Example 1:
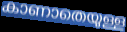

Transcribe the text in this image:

കാണാതെയുള്ള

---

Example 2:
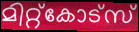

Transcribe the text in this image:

മിറ്റ്കോട്സ്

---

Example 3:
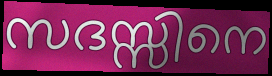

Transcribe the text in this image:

സദസ്സിനെ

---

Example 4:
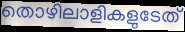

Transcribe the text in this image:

തൊഴിലാളികളുടേത്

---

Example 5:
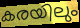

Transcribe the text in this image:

കരയിലും